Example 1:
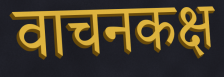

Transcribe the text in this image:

वाचनकक्ष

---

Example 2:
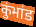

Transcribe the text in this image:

कुंभांड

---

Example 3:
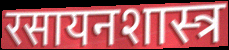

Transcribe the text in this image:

रसायनशास्त्र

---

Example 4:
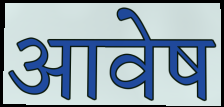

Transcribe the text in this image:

आवेष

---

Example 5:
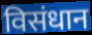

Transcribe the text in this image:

विसंधान